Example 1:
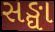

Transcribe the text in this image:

સઙ્ઘા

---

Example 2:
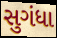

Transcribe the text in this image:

સુગંધા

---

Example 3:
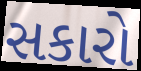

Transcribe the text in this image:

સકારો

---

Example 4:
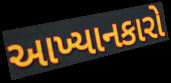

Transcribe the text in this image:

આખ્યાનકારો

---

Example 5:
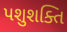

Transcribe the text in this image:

પશુશક્તિ